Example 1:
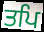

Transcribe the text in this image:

ਤਪਿ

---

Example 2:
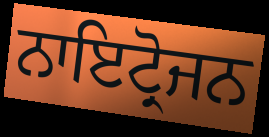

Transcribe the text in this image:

ਨਾਇਟ੍ਰੋਜਨ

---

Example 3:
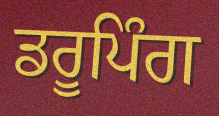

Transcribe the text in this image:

ਡਰੂਪਿੰਗ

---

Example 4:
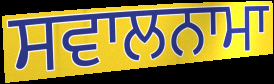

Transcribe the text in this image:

ਸਵਾਲਨਾਮਾ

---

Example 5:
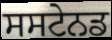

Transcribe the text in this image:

ਸਸਟੇਨਡ